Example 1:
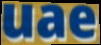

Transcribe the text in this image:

uae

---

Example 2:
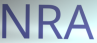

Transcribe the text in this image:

NRA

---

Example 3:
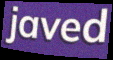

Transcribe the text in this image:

javed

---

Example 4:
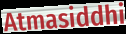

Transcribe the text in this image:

Atmasiddhi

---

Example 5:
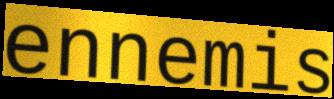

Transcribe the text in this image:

ennemis